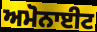
ਅਮੋਨਾਈਟ